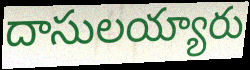
దాసులయ్యారు